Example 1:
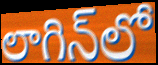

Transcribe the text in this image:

లాగిన్‌లో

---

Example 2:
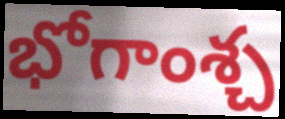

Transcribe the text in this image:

భోగాంశ్చ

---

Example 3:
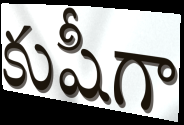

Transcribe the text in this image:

కుషీగా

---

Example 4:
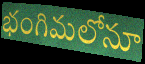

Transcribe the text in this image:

భంగిమలోనూ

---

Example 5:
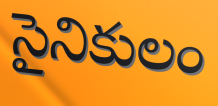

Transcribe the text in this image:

సైనికులం